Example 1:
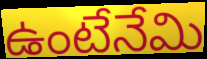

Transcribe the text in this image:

ఉంటేనేమి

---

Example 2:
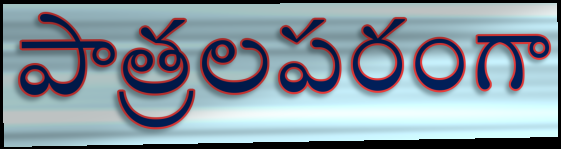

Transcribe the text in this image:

పాత్రలపరంగా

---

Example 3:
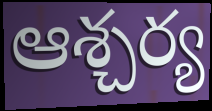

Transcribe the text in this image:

ఆశ్చర్య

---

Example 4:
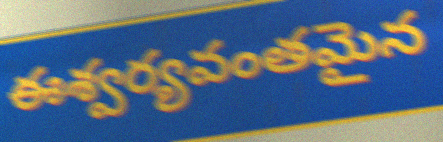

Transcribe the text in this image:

ఈశ్వర్యవంతమైన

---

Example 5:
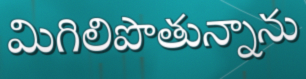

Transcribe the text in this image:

మిగిలిపొతున్నాను